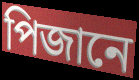
পিজানে